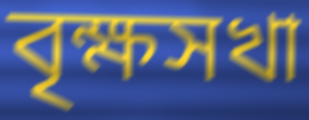
বৃক্ষসখা